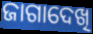
ଜାଗାଦେଖି